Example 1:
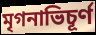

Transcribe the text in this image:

মৃগনাভিচূর্ণ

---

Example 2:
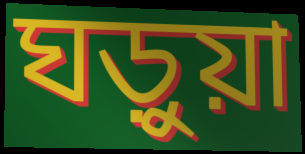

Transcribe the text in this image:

ঘড়ুয়া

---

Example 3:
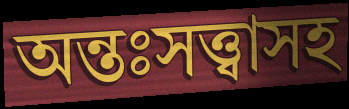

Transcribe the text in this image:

অন্তঃসত্ত্বাসহ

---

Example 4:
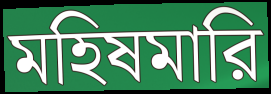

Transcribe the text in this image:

মহিষমারি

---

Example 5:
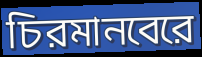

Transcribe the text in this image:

চিরমানবেরে